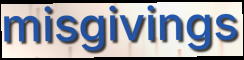
misgivings